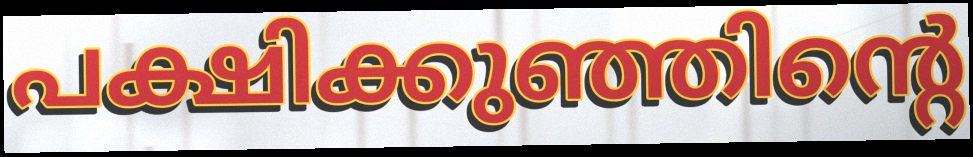
പക്ഷിക്കുഞ്ഞിന്റെ